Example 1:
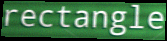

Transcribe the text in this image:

rectangle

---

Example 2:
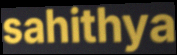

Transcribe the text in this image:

sahithya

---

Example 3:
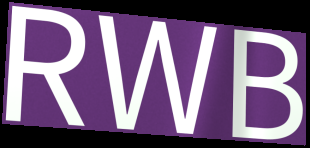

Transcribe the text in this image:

RWB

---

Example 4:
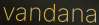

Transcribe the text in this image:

vandana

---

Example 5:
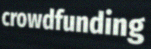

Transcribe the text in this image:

crowdfunding